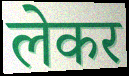
लेकर